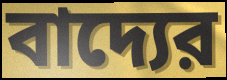
বাদ্যের